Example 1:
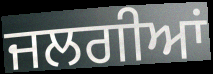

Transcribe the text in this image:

ਜਲਗੀਆਂ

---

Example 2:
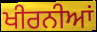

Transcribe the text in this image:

ਖੀਰਨੀਆਂ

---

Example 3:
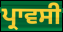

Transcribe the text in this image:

ਪ੍ਰਾਵਸੀ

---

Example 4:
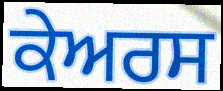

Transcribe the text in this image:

ਕੇਅਰਸ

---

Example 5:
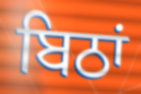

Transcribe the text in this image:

ਬਿਠਾਂ